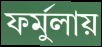
ফর্মুলায়